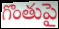
గొంతుపై